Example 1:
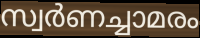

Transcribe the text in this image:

സ്വർണച്ചാമരം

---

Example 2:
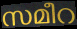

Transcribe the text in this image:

സമീറ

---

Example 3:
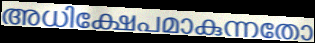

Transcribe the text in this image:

അധിക്ഷേപമാകുന്നതോ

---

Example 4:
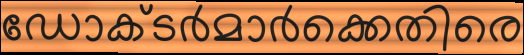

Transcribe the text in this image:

ഡോക്ടർമാർക്കെതിരെ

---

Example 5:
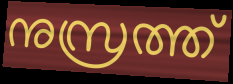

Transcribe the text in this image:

നുസ്രത്ത്